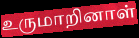
உருமாறினாள்